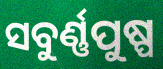
ସବୁର୍ଣ୍ଣପୁଷ୍ପ